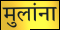
मुलांना